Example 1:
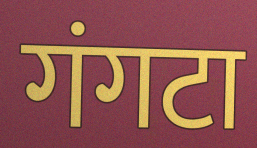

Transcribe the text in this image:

गंगटा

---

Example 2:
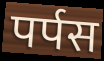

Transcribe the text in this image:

पर्पस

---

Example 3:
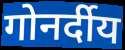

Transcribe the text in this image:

गोनर्दीय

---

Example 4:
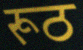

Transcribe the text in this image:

रूठ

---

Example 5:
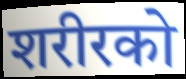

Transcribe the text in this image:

शरीरको